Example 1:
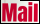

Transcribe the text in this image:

Mail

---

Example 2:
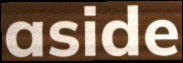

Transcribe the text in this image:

aside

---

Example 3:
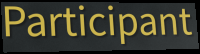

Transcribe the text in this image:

Participant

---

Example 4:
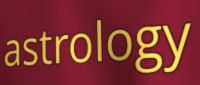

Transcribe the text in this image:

astrology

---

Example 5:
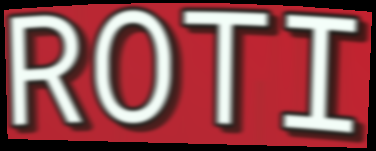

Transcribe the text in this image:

ROTI